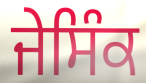
ਜੇਸਿੰਕ